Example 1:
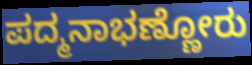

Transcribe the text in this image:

ಪದ್ಮನಾಭಣ್ಣೋರು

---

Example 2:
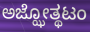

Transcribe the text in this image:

ಅಜ್ಝೋತ್ಥಟಂ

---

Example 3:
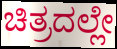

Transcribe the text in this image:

ಚಿತ್ರದಲ್ಲೇ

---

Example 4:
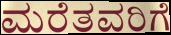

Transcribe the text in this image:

ಮರೆತವರಿಗೆ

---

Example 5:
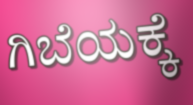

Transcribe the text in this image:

ಗಿಬೆಯಕ್ಕೆ